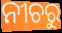
ନୀଚରୁ